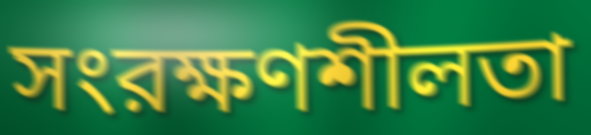
সংরক্ষণশীলতা